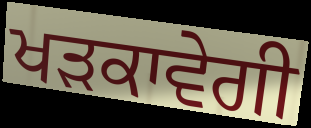
ਖੜਕਾਵੇਗੀ